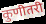
कुणीतरी